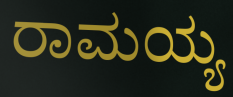
ರಾಮಯ್ಯ